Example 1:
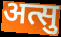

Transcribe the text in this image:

अत्सु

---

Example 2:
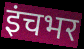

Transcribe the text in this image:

इंचभर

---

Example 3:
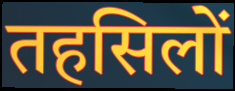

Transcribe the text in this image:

तहसिलों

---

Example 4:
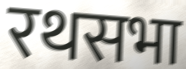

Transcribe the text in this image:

रथसभा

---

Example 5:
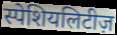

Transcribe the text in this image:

स्पेशियलिटीज़